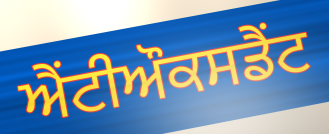
ਐਂਟੀਔਕਸਡੈਂਟ